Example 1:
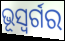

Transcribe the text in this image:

ଭୂସ୍ବର୍ଗର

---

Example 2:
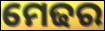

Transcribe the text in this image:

ମେଢର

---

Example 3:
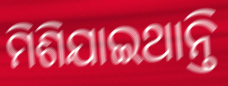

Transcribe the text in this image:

ମିଶିଯାଇଥାନ୍ତି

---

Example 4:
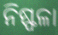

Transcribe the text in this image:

ନିଷ୍ଫଳା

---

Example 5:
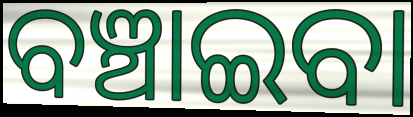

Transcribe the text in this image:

ବଞ୍ଚାଇବା